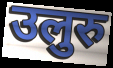
उलुरु